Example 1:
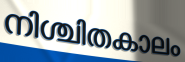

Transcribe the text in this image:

നിശ്ചിതകാലം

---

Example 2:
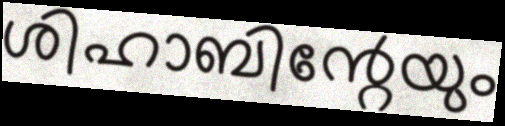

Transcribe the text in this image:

ശിഹാബിന്റേയും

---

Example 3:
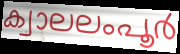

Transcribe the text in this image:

ക്വാലലംപൂർ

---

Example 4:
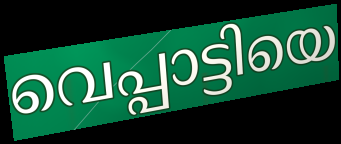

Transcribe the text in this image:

വെപ്പാട്ടിയെ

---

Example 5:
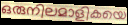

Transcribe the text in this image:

ഒരുനിലമാളികയെ